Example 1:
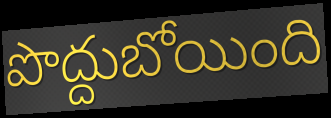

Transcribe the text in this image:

పొద్దుబోయింది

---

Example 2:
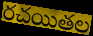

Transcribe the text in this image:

రచయితల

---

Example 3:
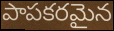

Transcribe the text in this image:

పాపకరమైన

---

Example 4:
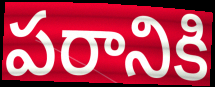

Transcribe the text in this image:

పరానికి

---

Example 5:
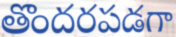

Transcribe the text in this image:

తొందరపడగా